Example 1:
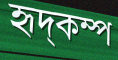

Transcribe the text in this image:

হৃদ্কম্প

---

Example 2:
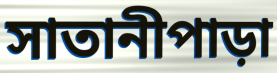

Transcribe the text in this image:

সাতানীপাড়া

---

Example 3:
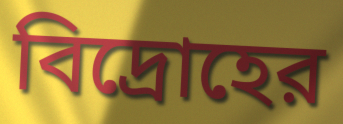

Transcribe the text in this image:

বিদ্রোহের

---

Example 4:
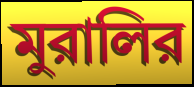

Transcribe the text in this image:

মুরালির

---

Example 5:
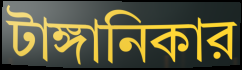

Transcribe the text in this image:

টাঙ্গানিকার